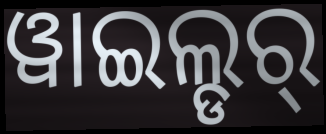
ୱାଇଲ୍ଡର୍